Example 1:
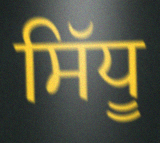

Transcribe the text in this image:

ਸਿੱਧੂ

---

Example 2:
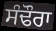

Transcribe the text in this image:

ਸੰਢੌਰਾ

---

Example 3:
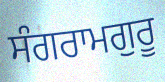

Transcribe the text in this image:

ਸੰਗਰਾਮਗੁਰੂ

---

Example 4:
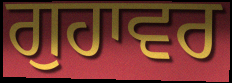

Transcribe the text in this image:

ਗੁਹਾਵਰ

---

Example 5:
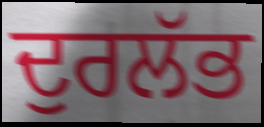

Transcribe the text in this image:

ਦੁਰਲੱਭ